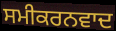
ਸਮੀਕਰਨਵਾਦ